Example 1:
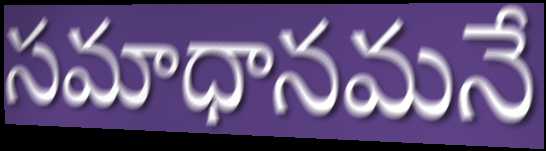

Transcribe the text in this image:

సమాధానమనే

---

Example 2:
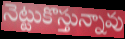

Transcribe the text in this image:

నెట్టుకొస్తున్నావు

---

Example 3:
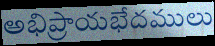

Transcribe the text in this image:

అభిప్రాయభేదములు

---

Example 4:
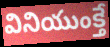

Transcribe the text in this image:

వినియుంక్తే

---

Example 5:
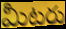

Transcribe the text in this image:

మీటరు